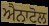
ਐਨਾਟੋਲ